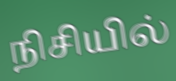
நிசியில்